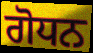
ਗੋਧਨ